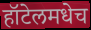
हॉटेलमधेच